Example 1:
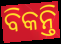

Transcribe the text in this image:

ବିକନ୍ତି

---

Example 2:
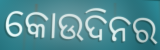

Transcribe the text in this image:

କୋଉଦିନର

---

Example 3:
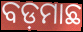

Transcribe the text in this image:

ବଡ଼ମାଛ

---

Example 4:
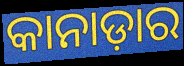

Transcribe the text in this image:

କାନାଡ଼ାର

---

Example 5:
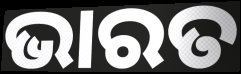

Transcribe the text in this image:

ଭାରତ